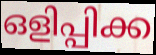
ഒളിപ്പിക്ക